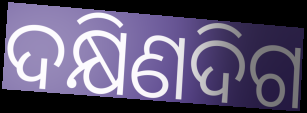
ଦକ୍ଷିଣଦିଗ